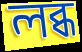
লব্ধ